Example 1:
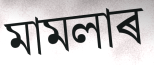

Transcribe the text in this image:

মামলাৰ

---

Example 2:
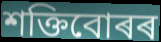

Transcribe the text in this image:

শক্তিবোৰৰ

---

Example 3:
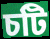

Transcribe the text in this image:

চটি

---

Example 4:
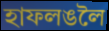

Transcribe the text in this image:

হাফলঙলৈ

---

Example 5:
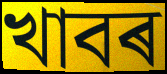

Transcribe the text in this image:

খাবৰ